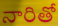
నారితో